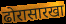
ढोरासारखा